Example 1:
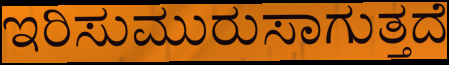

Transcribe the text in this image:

ಇರಿಸುಮುರುಸಾಗುತ್ತದೆ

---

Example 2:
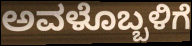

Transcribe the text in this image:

ಅವಳೊಬ್ಬಳಿಗೆ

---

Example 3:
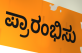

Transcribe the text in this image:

ಪ್ರಾರಂಭಿಸು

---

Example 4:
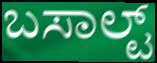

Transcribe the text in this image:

ಬಸಾಲ್ಟ್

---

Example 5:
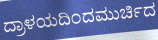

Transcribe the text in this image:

ದ್ರಾಳಯದಿಂದಮುರ್ಚಿದ